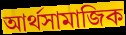
আর্থসামাজিক